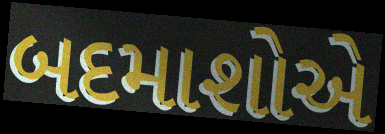
બદમાશોએ